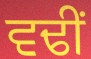
ਵਢੀਂ